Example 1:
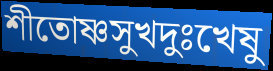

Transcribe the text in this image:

শীতোষ্ণসুখদুঃখেষু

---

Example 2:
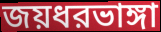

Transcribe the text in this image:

জয়ধরভাঙ্গা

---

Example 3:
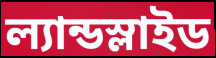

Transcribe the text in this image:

ল্যান্ডস্লাইড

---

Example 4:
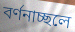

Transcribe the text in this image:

বর্ণনাচ্ছলে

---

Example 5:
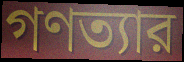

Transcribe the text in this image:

গণত্যার